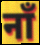
नाँ